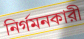
নির্গমনকারী